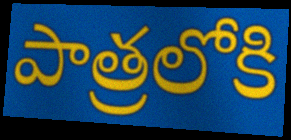
పాత్రలోకి